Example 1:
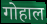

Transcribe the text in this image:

गोहाल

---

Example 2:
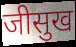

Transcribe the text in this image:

जीसुख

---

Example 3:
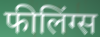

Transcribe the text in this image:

फीलिंग्स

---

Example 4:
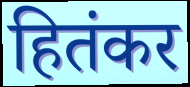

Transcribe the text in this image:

हितंकर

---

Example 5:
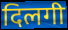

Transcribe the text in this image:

दिलगी